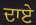
ਦਾਏ